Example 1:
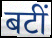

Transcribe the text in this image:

बटीं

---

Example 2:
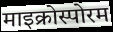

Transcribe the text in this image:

माइक्रोस्पोरम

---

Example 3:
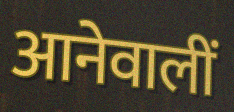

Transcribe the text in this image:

आनेवालीं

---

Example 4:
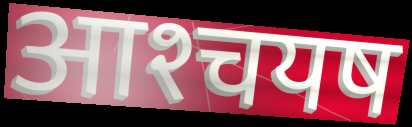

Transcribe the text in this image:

आश्चयष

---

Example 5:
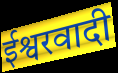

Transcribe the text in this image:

ईश्वरवादी